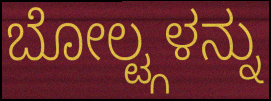
ಬೋಲ್ಟ್ಗಳನ್ನು